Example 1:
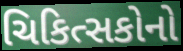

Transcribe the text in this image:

ચિકિત્સકોનો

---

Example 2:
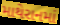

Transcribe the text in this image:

માથેરાનમાં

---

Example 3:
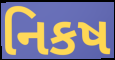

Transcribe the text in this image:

નિકષ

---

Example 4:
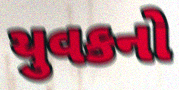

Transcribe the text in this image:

યુવકનો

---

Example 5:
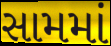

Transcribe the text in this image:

સામમાં